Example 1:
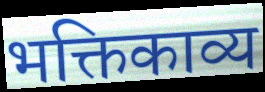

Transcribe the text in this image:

भक्तिकाव्य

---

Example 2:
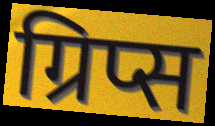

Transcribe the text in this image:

ग्रिप्स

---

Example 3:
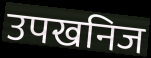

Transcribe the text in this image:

उपखनिज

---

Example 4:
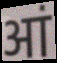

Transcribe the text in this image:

आं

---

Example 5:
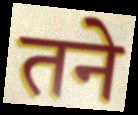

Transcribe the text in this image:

तने